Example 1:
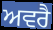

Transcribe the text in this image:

ਅਵਰੈ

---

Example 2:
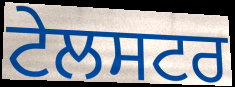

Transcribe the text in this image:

ਟੇਲਸਟਰ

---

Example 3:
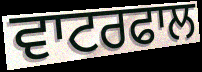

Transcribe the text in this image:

ਵਾਟਰਫਾਲ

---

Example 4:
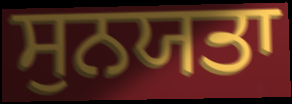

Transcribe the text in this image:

ਸੁਨਯਤਾ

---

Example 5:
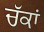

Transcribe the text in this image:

ਚੱਕਾਂ